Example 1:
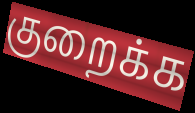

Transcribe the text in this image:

குறைக்க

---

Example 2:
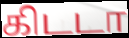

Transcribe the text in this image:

கிடடா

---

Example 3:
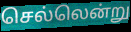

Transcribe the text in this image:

செல்லென்று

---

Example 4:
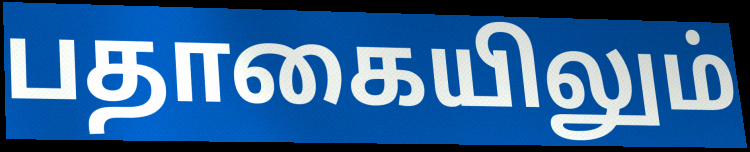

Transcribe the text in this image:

பதாகையிலும்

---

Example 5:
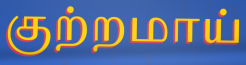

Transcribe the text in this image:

குற்றமாய்